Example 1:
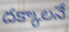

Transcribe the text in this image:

దక్కాలనే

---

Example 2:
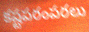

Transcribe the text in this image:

కష్టపరంపరలు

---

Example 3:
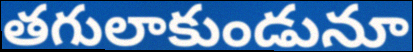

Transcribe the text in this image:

తగులాకుండునూ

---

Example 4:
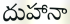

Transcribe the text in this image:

దుహానా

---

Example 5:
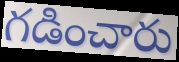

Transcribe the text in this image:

గడించారు